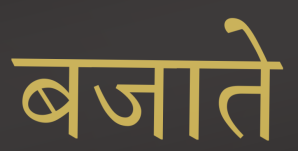
बजाते